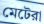
মেটেরা